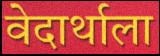
वेदार्थाला